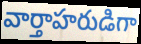
వార్తాహరుడిగా